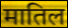
मातिल